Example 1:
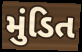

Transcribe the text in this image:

મુંડિત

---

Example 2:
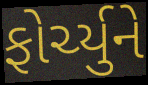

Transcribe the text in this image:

ફોર્ચ્યુને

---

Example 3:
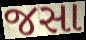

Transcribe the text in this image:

જસા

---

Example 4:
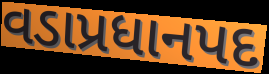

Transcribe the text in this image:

વડાપ્રધાનપદ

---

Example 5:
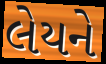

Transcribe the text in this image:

લેયને